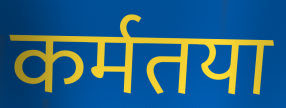
कर्मतया